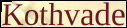
Kothvade